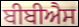
ਬੀਬੀਐਸ